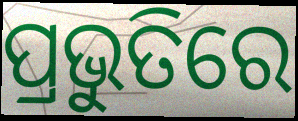
ପ୍ରଭୁତିରେ